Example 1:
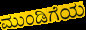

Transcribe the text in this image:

ಮುಂಡಿಗೆಯ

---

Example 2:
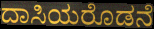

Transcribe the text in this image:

ದಾಸಿಯರೊಡನೆ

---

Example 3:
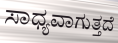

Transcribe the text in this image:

ಸಾಧ್ಯವಾಗುತ್ತದೆ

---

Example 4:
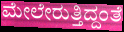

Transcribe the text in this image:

ಮೇಲೇರುತ್ತಿದ್ದಂತೆ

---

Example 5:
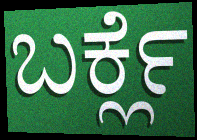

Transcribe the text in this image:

ಬರ್ಕ್ಲೆ